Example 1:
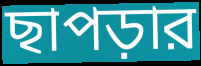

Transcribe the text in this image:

ছাপড়ার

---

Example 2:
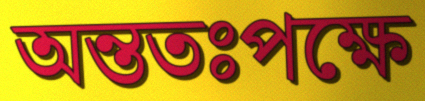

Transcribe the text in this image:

অন্ততঃপক্ষে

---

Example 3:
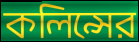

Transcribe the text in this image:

কলিন্সের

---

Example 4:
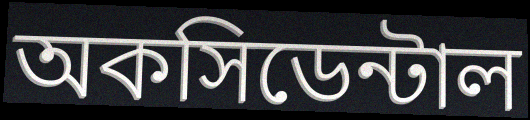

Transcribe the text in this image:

অকসিডেন্টাল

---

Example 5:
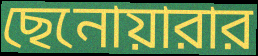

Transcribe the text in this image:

ছেনোয়ারার